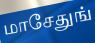
மாசேதுங்